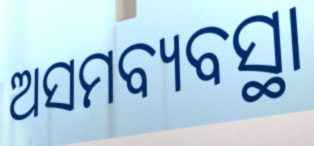
ଅସମବ୍ୟବସ୍ଥା